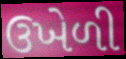
ઉખેળી